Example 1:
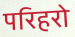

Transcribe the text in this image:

परिहरो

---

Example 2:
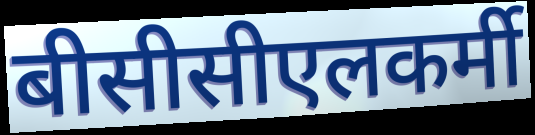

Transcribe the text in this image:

बीसीसीएलकर्मी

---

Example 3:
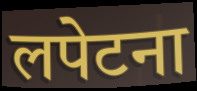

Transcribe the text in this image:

लपेटना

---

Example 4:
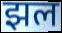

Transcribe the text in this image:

झल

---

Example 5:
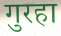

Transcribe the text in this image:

गुरहा